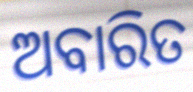
ଅବାରିତ